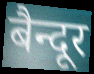
बैन्दूर